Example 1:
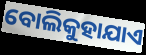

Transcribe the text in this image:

ବୋଲିକୁହାଯାଏ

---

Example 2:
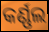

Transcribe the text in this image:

କର୍ଣ୍ଣଲ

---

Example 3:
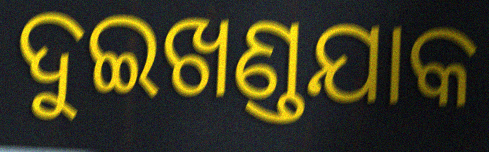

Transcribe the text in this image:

ଦୁଇଖଣ୍ଡଯାକ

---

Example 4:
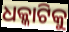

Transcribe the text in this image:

ଧକ୍କାଟିକୁ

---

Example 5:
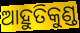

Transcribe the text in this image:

ଆହୁତିକୁଣ୍ଡ